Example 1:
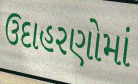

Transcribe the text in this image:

ઉદાહરણોમાં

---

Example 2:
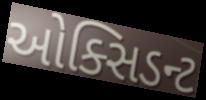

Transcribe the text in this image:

ઓક્સિડન્ટ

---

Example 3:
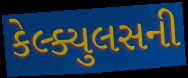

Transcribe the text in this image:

કેલ્ક્યુલસની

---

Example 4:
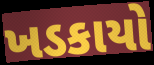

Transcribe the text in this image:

ખડકાયો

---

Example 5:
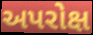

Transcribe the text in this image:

અપરોક્ષ